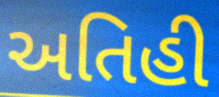
અતિહી